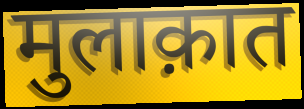
मुलाक़ात